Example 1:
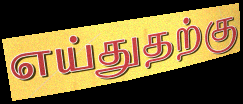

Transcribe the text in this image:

எய்துதற்கு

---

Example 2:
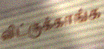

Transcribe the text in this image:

விட்ருக்காங்க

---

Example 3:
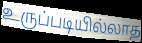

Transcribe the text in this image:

உருப்படியில்லாத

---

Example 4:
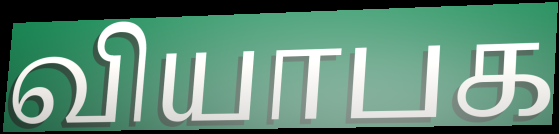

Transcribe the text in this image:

வியாபக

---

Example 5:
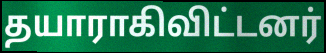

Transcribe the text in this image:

தயாராகிவிட்டனர்